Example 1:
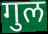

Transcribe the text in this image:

गुल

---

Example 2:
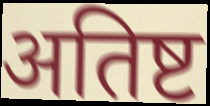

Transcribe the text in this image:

अतिष्ट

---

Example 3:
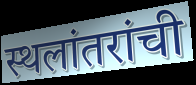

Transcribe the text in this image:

स्थलांतरांची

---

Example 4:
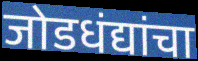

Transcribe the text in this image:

जोडधंद्यांचा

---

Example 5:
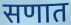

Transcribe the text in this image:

सणात